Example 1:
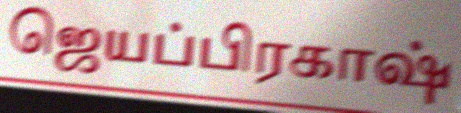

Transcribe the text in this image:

ஜெயப்பிரகாஷ்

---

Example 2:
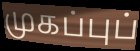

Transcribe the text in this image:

முகப்புப்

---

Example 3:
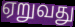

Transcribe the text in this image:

ஏறுவது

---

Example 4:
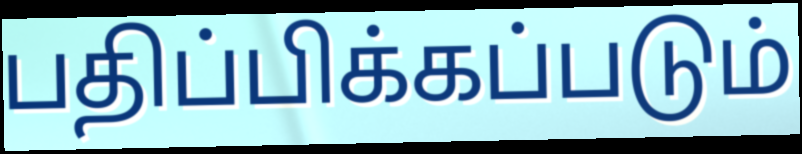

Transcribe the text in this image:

பதிப்பிக்கப்படும்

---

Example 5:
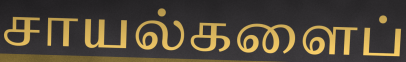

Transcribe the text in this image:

சாயல்களைப்